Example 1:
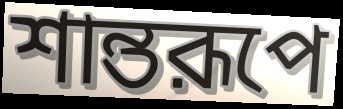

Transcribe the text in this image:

শান্তরূপে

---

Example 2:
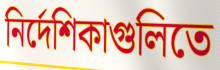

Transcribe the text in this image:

নির্দেশিকাগুলিতে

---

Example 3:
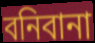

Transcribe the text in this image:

বনিবানা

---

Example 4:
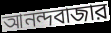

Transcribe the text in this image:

আনন্দবাজার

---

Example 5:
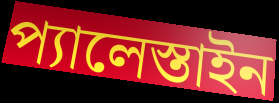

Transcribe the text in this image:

প্যালেস্তাইন